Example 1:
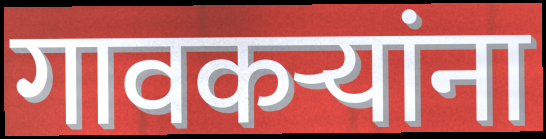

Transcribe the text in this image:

गावकऱ्यांना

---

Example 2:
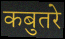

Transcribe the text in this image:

कबुतरे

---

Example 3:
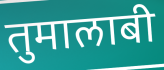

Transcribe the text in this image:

तुमालाबी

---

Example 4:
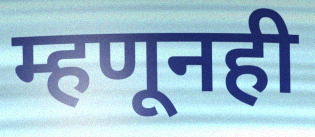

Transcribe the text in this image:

म्हणूनही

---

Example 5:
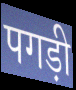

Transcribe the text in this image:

पगड़ी